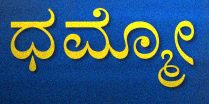
ಧಮ್ಮೋ